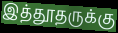
இத்தூதருக்கு